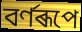
বৰ্ণৰূপে